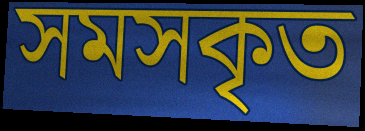
সমসকৃত